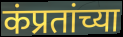
कंप्रतांच्या